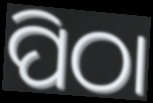
ପିଠା